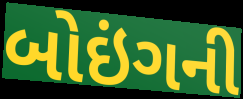
બોઇંગની